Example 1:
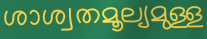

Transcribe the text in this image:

ശാശ്വതമൂല്യമുള്ള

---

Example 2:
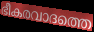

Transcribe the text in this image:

ഭീകരവാദത്തെ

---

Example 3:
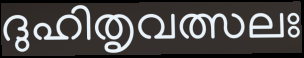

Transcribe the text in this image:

ദുഹിതൃവത്സലഃ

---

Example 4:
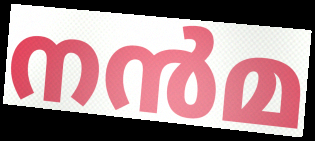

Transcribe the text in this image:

നൻമ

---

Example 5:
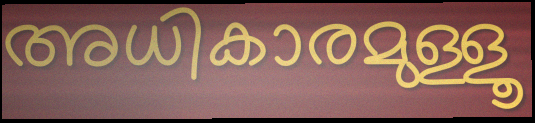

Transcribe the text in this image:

അധികാരമുള്ളൂ